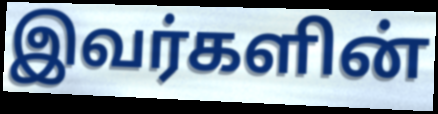
இவர்களின்